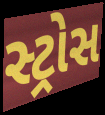
સ્ટ્રોસ